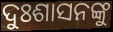
ଦୁଃଶାସନଙ୍କୁ